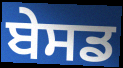
ਬੇਸਡ